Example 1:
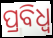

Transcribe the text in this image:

ପ୍ରବିଧ୍ଵ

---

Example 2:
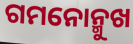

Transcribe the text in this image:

ଗମନୋନ୍ମୁଖ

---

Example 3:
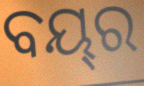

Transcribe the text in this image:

ବୟ୍‌ର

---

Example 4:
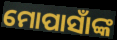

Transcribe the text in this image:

ମୋପାସାଁଙ୍କ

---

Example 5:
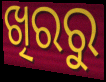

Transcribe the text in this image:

ଖିରରୁ